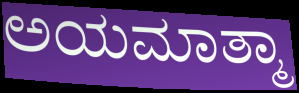
ಅಯಮಾತ್ಮಾ